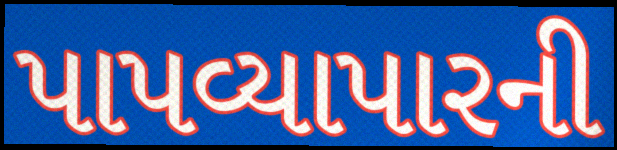
પાપવ્યાપારની